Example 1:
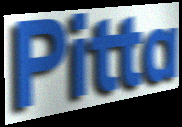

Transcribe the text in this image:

Pitta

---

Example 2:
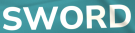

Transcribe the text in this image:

SWORD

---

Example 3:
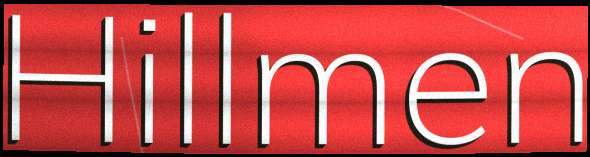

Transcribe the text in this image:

Hillmen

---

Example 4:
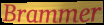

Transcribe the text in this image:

Brammer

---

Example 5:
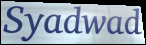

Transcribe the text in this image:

Syadwad